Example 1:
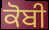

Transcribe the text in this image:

ਕੋਬੀ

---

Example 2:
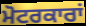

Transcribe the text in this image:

ਮੋਟਰਕਾਰਾਂ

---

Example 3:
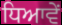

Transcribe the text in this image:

ਧਿਆਵੇਂ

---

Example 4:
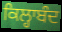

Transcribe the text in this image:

ਕਿਲ੍ਹਾਬੰਦ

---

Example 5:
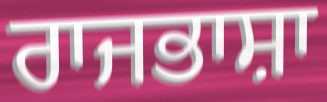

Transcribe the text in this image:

ਰਾਜਭਾਸ਼ਾ